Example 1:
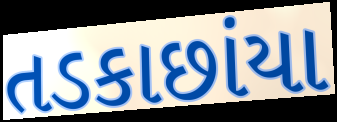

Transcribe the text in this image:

તડકાછાંયા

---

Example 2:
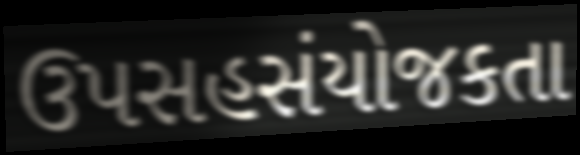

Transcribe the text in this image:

ઉપસહસંયોજકતા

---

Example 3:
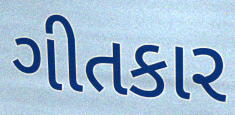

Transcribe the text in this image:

ગીતકાર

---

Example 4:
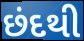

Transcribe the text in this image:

છંદથી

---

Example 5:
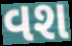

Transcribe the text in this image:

વશ